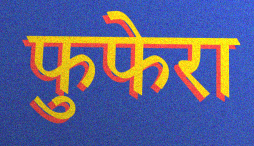
फुफेरा